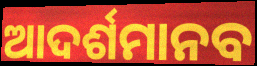
ଆଦର୍ଶମାନବ